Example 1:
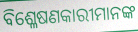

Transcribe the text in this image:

ବିଶ୍ଳେଷଣକାରୀମାନଙ୍କ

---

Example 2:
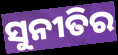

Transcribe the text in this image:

ସୁନୀତିର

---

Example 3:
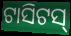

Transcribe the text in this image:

ଟାସିଟସ୍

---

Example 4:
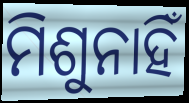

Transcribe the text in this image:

ମିଶୁନାହିଁ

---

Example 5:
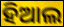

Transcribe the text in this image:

ହିଆଲ